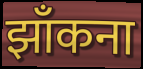
झाँकना